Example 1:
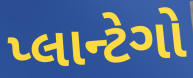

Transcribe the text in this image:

પ્લાન્ટેગો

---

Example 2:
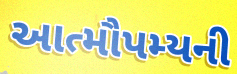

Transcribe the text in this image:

આત્મૌપમ્યની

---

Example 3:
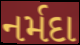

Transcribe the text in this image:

નર્મદા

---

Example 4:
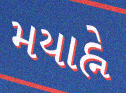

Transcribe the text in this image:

મયાહ્ને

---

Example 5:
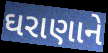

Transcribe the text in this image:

ઘરાણાને